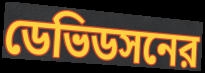
ডেভিডসনের